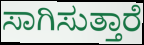
ಸಾಗಿಸುತ್ತಾರೆ